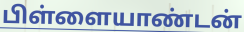
பிள்ளையாண்டன்